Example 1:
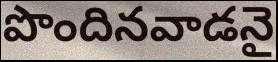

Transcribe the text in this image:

పొందినవాడనై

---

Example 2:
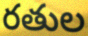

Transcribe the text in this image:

రతుల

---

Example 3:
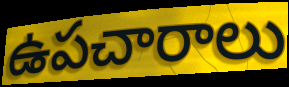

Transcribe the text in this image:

ఉపచారాలు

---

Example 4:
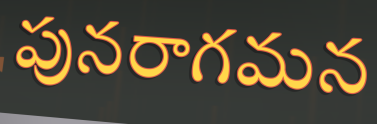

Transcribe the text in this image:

పునరాగమన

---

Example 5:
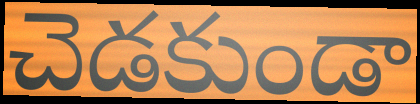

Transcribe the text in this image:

చెడకుండా